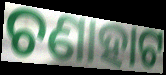
ଚଣାହାଟ